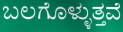
ಬಲಗೊಳ್ಳುತ್ತವೆ